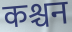
कश्चन